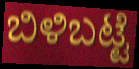
ಬಿಳಿಬಟ್ಟೆ